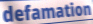
defamation